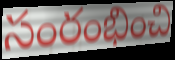
సంరంభించి